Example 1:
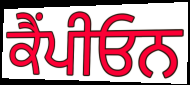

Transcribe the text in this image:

ਕੈਂਪੀਓਨ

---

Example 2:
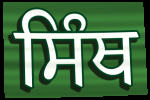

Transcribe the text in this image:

ਸਿੰਥ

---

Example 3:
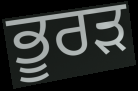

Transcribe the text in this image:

ਭੂਰੜ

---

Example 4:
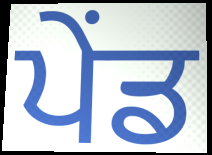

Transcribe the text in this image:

ਪੇਂਡ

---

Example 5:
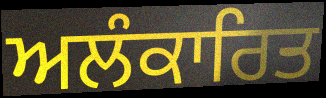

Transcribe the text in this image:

ਅਲੰਕਾਰਿਤ